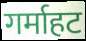
गर्माहट